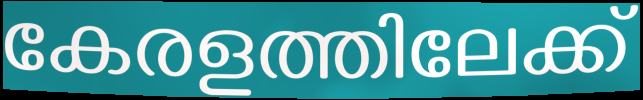
കേരളത്തിലേക്ക്